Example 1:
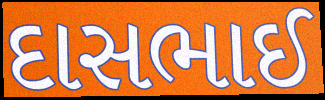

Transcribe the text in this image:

દાસભાઈ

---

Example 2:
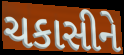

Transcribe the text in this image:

ચકાસીને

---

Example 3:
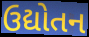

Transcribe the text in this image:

ઉદ્યોતન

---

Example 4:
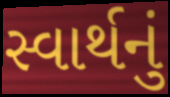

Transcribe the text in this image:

સ્વાર્થનું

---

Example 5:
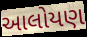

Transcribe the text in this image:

આલોયણ